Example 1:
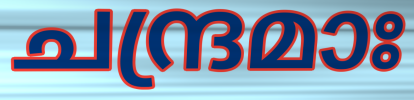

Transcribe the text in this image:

ചന്ദ്രമാഃ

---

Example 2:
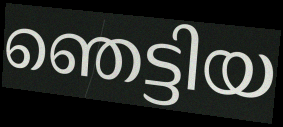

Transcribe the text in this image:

ഞെട്ടിയ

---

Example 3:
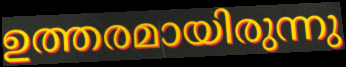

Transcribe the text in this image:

ഉത്തരമായിരുന്നു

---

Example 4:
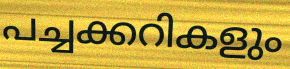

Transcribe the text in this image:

പച്ചക്കറികളും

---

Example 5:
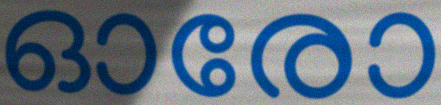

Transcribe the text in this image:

ഓരോ